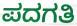
ಪದಗತಿ